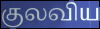
குலவிய